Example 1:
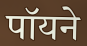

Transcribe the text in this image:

पॉयने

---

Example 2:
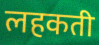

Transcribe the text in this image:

लहकती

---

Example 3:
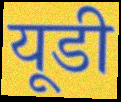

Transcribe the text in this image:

यूडी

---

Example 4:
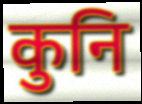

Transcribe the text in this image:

कुनि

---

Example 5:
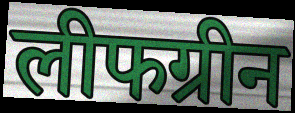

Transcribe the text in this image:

लीफग्रीन